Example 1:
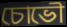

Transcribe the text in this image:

চোভৌ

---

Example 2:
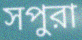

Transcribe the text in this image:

সপুরা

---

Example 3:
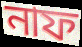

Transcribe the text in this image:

নাফ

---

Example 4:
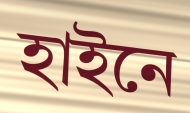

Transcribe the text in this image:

হাইনে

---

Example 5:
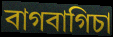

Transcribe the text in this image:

বাগবাগিচা